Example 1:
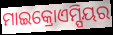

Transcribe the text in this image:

ମାଇକ୍ରୋଏମ୍ପିୟର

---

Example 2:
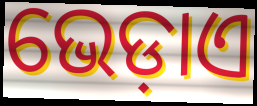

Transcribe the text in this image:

ଭେଡ଼ାଏ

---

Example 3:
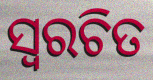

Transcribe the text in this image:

ସ୍ୱରଚିତ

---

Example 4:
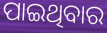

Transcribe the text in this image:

ପାଇଥିବାର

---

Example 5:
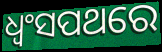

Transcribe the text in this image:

ଧ୍ବଂସପଥରେ